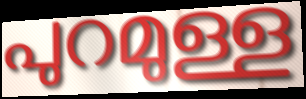
പുറമുള്ള